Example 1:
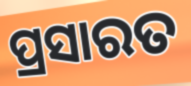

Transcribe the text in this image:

ପ୍ରସାରତ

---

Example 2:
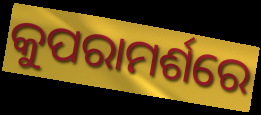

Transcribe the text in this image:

କୁପରାମର୍ଶରେ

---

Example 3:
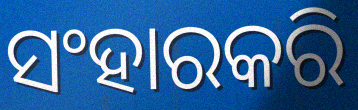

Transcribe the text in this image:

ସଂହାରକରି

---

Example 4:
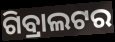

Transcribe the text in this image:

ଗିବ୍ରାଲଟର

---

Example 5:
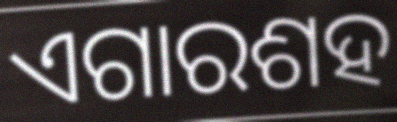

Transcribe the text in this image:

ଏଗାରଶହ